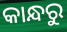
କାନ୍ଧରୁ